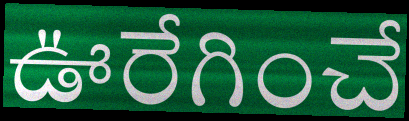
ఊరేగించే